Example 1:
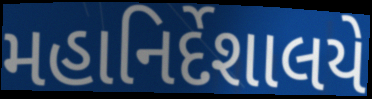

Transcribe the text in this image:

મહાનિર્દેશાલયે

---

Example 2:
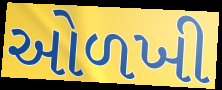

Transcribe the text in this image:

ઓળખી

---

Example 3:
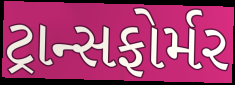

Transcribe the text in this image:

ટ્રાન્સફોર્મર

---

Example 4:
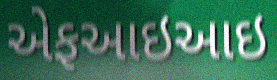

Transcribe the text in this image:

એફઆઇઆઇ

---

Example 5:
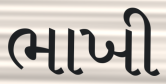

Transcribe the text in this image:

ભાખી